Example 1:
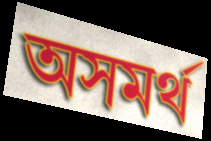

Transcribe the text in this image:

অসমর্থ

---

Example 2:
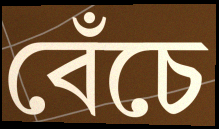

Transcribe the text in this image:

বেঁচে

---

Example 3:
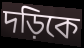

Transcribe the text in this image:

দড়িকে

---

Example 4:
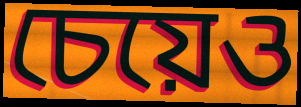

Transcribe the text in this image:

চেয়েও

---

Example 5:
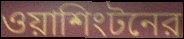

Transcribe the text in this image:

ওয়াশিংটনের